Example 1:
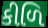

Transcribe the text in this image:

કીળિ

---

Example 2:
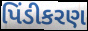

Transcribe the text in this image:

પિંડીકરણ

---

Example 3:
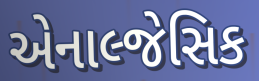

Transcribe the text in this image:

એનાલ્જેસિક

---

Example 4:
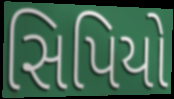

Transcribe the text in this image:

સિપિયો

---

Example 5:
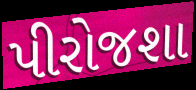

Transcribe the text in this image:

પીરોજશા